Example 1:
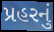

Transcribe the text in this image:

પ્રહરનું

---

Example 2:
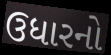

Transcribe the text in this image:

ઉધારનો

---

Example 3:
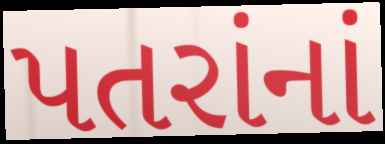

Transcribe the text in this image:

પતરાંનાં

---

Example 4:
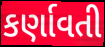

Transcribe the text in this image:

કર્ણાવતી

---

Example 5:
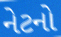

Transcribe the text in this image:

નેટનો